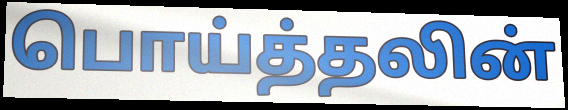
பொய்த்தலின்